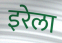
इरेला